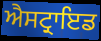
ਐਸਟ੍ਰਾਇਡ